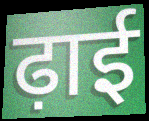
ढ़ाई